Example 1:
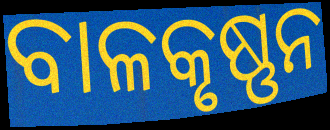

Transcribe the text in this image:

ବାଳକୃଷ୍ଣନ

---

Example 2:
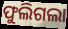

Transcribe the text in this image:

ଫୁଲିଗଲା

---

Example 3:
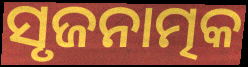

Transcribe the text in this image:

ସୃଜନାତ୍ମକ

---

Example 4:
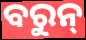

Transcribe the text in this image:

ବରୁନ୍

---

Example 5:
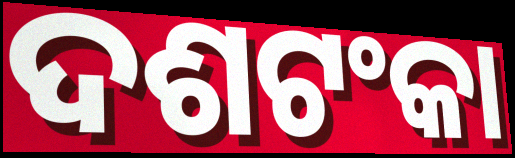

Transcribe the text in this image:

ଦଶଟଂକା